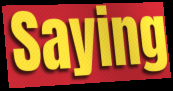
Saying